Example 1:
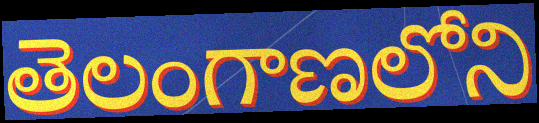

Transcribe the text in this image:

తెలంగాణలోని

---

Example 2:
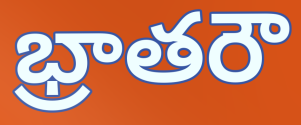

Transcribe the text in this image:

భ్రాతరౌ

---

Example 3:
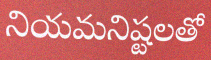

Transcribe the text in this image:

నియమనిష్టలతో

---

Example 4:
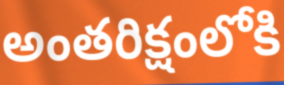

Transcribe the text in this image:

అంతరిక్షంలోకి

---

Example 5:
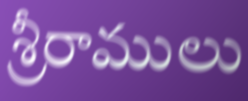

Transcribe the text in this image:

శ్రీరాములు